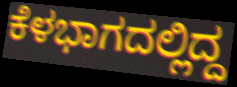
ಕೆಳಭಾಗದಲ್ಲಿದ್ದ